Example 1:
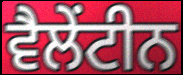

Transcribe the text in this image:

ਵੈਲੇਂਟੀਨ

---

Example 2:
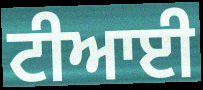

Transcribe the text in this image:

ਟੀਆਈ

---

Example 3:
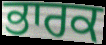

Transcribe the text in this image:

ਭਾਰਕ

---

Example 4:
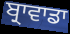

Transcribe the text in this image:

ਬ੍ਰਾਵਾਡਾ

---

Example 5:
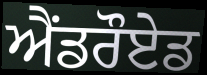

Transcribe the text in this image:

ਐਂਡਰੌਏਡ